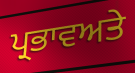
ਪ੍ਰਭਾਵਅਤੇ